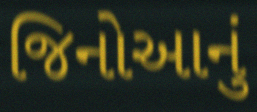
જિનોઆનું